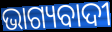
ଭାଗ୍ୟବାଦୀ